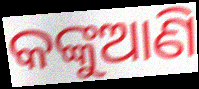
କଙ୍କୁଆଣି